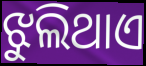
ଝୁଲିଥାଏ